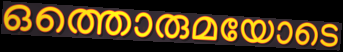
ഒത്തൊരുമയോടെ